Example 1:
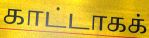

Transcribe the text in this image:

காட்டாகக்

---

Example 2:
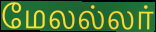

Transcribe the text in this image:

மேலல்லர்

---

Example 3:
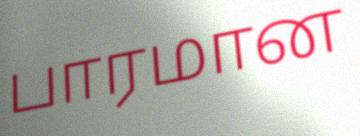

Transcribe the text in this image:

பாரமான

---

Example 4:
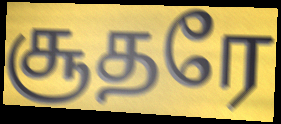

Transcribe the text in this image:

சூதரே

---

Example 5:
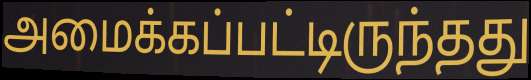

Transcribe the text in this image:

அமைக்கப்பட்டிருந்தது